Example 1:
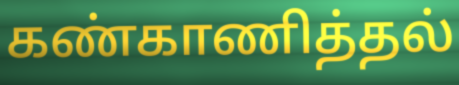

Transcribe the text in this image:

கண்காணித்தல்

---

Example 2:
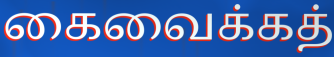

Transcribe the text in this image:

கைவைக்கத்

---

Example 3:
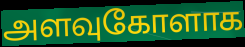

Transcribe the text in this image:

அளவுகோளாக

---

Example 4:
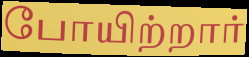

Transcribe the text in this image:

போயிற்றார்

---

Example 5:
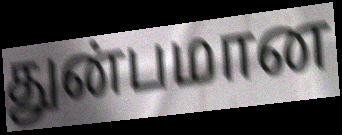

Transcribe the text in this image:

துன்பமான